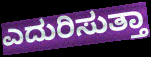
ಎದುರಿಸುತ್ತಾ